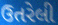
ઉતરેલી